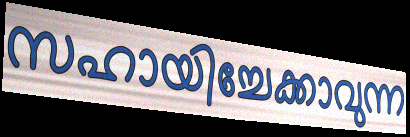
സഹായിച്ചേക്കാവുന്ന